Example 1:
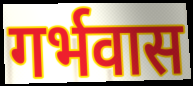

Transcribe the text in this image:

गर्भवास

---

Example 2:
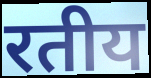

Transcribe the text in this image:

रतीय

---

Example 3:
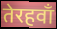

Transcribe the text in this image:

तेरहवाँ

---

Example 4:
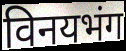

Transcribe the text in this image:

विनयभंग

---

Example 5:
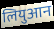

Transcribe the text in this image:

लियुआन